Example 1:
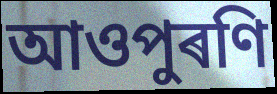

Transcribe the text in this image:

আওপুৰণি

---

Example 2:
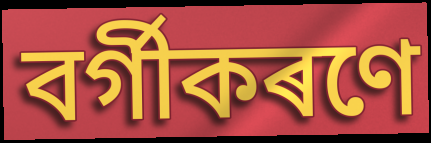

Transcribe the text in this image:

বৰ্গীকৰণে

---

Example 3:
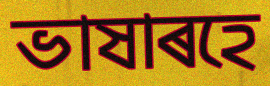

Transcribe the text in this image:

ভাষাৰহে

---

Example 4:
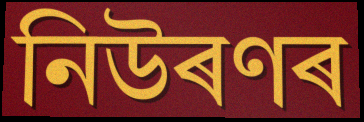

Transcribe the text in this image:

নিউৰণৰ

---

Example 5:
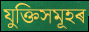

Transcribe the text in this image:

যুক্তিসমূহৰ